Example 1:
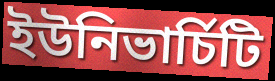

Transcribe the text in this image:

ইউনিভাৰ্চিটি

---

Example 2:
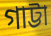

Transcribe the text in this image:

গাট্টা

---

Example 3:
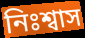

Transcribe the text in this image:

নিঃশ্বাস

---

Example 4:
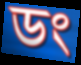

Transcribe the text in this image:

ডং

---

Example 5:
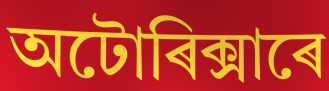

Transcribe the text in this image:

অটোৰিক্সাৰে